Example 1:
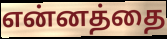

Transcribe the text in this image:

என்னத்தை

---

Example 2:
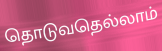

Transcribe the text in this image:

தொடுவதெல்லாம்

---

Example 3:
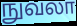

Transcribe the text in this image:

நுவலா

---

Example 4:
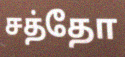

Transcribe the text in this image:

சத்தோ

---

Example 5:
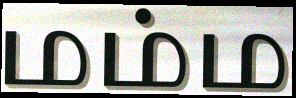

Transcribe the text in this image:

மம்ம